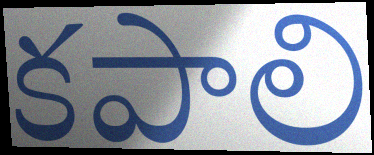
కపాలి